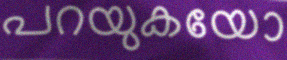
പറയുകയോ